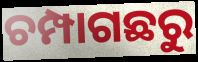
ଚମ୍ପାଗଛରୁ